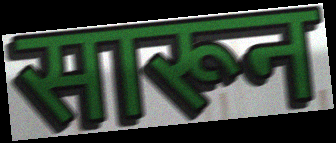
सारून